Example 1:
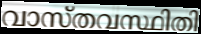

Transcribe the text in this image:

വാസ്തവസ്ഥിതി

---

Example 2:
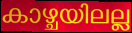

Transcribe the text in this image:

കാഴ്ചയിലല്ല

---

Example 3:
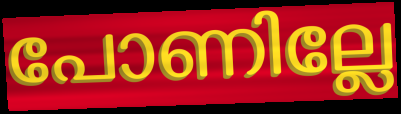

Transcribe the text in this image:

പോണില്ലേ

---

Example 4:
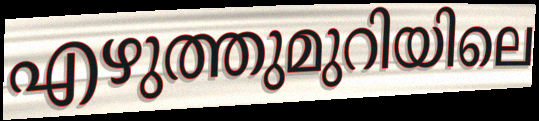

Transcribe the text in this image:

എഴുത്തുമുറിയിലെ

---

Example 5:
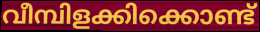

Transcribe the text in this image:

വീമ്പിളക്കിക്കൊണ്ട്